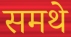
समथे